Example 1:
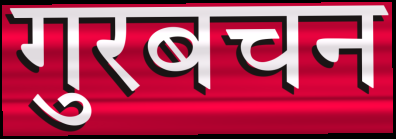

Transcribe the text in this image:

गुरबचन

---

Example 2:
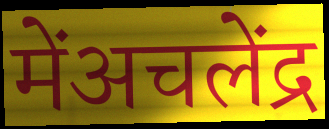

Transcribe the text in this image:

मेंअचलेंद्र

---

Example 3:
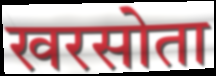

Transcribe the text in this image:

खरसोता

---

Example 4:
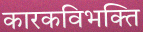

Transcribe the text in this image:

कारकविभक्ति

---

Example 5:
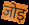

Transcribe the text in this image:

जोइ